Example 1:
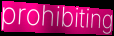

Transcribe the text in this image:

prohibiting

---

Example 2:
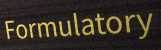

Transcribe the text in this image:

Formulatory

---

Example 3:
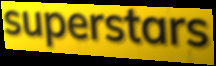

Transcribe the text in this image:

superstars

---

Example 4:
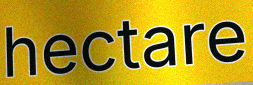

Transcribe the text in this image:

hectare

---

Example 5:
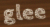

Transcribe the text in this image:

glee